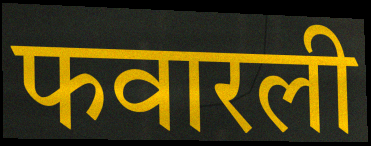
फवारली